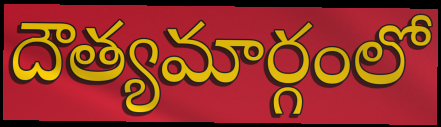
దౌత్యమార్గంలో